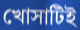
খোসাটিই